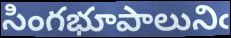
సింగభూపాలునిఁ